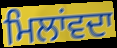
ਮਿਲਾਂਵਦਾ